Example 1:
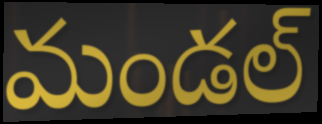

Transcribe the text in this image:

మండల్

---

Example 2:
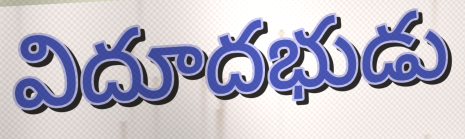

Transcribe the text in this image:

విదూదభుడు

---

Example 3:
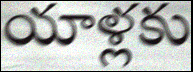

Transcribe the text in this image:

యాళ్లకు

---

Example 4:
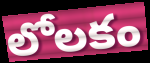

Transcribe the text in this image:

లోలకం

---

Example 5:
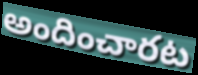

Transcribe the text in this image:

అందించారట